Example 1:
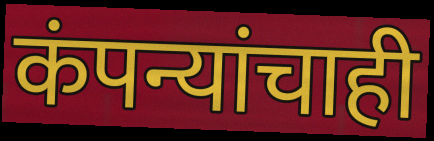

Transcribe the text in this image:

कंपन्यांचाही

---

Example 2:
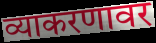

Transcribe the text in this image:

व्याकरणावर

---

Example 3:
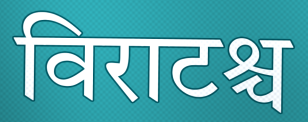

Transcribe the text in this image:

विराटश्च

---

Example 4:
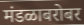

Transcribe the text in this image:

मंडळाबरोबर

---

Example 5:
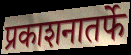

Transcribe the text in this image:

प्रकाशनातर्फे